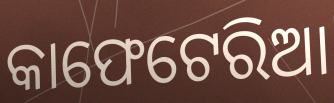
କାଫେଟେରିଆ